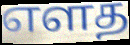
எளத